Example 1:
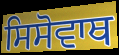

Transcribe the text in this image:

ਸਿਸੋਵਾਥ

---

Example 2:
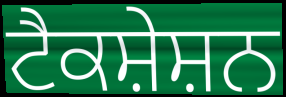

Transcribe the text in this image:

ਟੈਕਸ਼ੇਸ਼ਨ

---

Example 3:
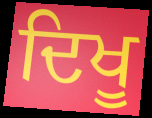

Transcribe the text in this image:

ਦਿਖੂ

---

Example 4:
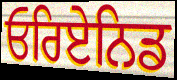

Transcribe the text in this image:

ਓਰਿਏਨਿਡ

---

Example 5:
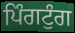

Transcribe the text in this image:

ਪਿੰਗਟੁੰਗ